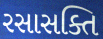
રસાસક્તિ